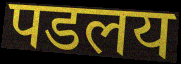
पडलय